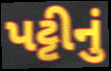
પટ્ટીનું